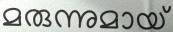
മരുന്നുമായ്